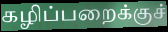
கழிப்பறைக்குச்